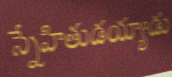
స్నేహితుడయ్యాడు